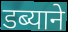
डब्याने